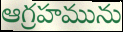
ఆగ్రహమును